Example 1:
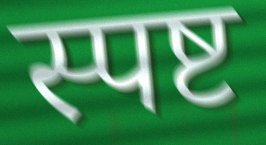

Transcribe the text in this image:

स्पष्ट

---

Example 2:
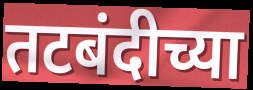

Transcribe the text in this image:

तटबंदीच्या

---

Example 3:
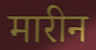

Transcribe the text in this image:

मारीन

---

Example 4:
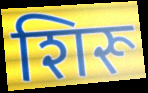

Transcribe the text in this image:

शिरू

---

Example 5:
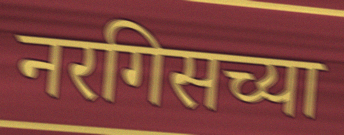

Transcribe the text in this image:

नरगिसच्या